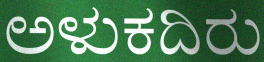
ಅಳುಕದಿರು